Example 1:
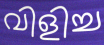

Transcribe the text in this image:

വിളിച്ച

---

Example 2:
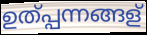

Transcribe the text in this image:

ഉത്പ്പന്നങ്ങള്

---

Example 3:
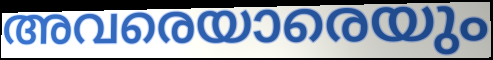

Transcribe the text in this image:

അവരെയാരെയും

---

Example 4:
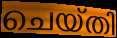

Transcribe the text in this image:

ചെയ്‌തി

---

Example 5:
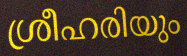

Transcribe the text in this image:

ശ്രീഹരിയും